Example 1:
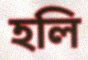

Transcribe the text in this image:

হলি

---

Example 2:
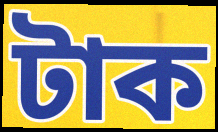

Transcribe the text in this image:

টাক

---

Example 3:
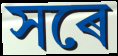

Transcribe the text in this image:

সৰে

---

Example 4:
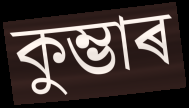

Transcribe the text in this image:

কুম্ভাৰ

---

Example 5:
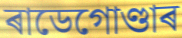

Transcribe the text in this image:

ৰাডেগোণ্ডাৰ